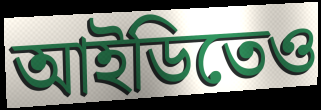
আইডিতেও